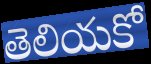
తెలియకో